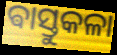
ଵାସ୍ତୁକଳା